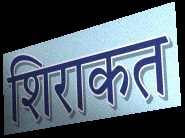
शिराकत